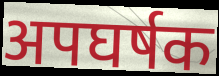
अपघर्षक